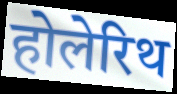
होलेरिथ